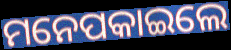
ମନେପକାଇଲେ